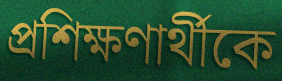
প্রশিক্ষণার্থীকে